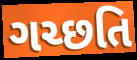
ગચ્છતિ